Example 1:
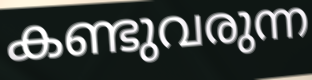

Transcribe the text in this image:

കണ്ടുവരുന്ന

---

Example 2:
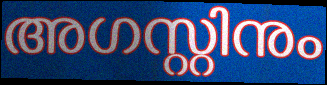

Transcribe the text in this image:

അഗസ്റ്റിനും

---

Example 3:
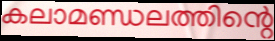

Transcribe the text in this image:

കലാമണ്ഡലത്തിന്റെ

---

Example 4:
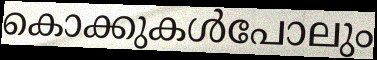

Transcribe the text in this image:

കൊക്കുകൾപോലും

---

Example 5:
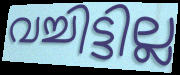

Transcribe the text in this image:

വച്ചിട്ടില്ല